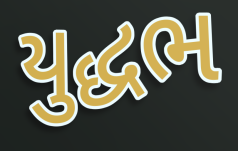
યુદ્ધભ